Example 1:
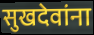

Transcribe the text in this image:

सुखदेवांना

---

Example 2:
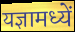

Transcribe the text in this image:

यज्ञामध्यें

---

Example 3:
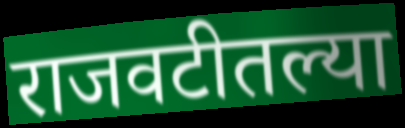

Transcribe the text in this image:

राजवटीतल्या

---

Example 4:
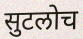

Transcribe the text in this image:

सुटलोच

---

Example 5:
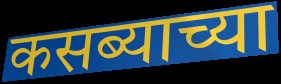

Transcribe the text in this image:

कसब्याच्या